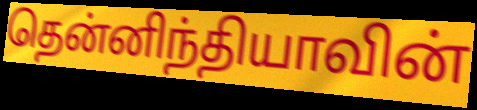
தென்னிந்தியாவின்